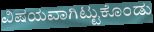
ವಿಷಯವಾಗಿಟ್ಟುಕೊಂಡು